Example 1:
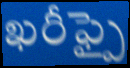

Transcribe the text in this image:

ఖరీఫ్పై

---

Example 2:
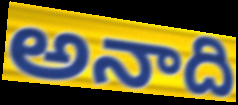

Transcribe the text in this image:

అనాది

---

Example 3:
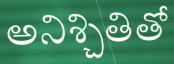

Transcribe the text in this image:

అనిశ్చితితో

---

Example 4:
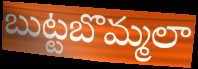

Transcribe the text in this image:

బుట్టబొమ్మలా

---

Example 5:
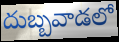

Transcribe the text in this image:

దుబ్బవాడలో